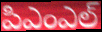
పిఎంఎల్